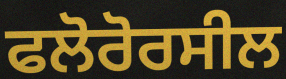
ਫਲੋਰੋਰਸੀਲ